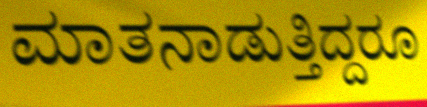
ಮಾತನಾಡುತ್ತಿದ್ದರೂ